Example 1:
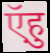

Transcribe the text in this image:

ऍहु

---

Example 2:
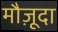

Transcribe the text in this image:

मौज़ूदा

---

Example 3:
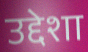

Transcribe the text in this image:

उद्देशा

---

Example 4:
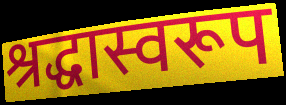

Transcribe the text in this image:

श्रद्धास्वरूप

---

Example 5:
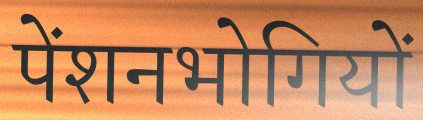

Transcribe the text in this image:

पेंशनभोगियों